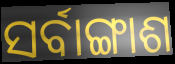
ସର୍ବାଙ୍ଗାଶ